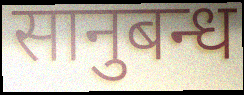
सानुबन्ध